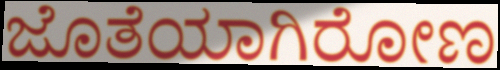
ಜೊತೆಯಾಗಿರೋಣ